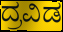
ದ್ರವಿಡ